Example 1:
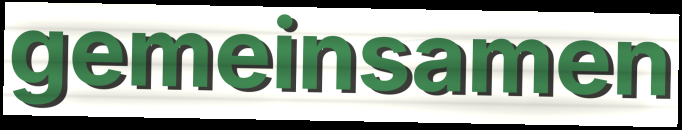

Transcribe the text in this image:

gemeinsamen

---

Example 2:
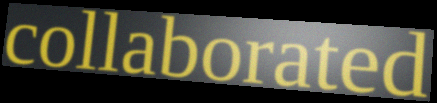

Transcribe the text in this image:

collaborated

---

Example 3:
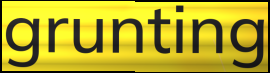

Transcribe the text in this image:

grunting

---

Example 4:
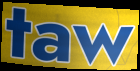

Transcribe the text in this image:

taw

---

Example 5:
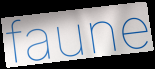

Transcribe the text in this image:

faune